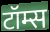
टॉम्स